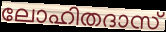
ലോഹിതദാസ്